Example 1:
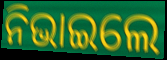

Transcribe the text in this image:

ନିଭାଇଲେ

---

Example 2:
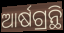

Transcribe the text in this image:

ଆର୍ଷଗ୍ରନ୍ଥି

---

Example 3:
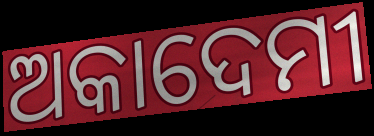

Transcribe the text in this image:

ଅକାଦେମୀ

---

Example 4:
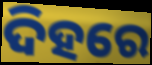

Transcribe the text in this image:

ଦିହରେ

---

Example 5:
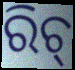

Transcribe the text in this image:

ରିଚ୍